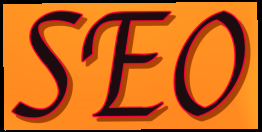
SEO